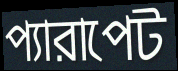
প্যারাপেট